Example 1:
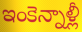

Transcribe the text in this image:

ఇంకెన్నాళ్లీ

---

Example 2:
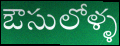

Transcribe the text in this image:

ఔసులోళ్ళ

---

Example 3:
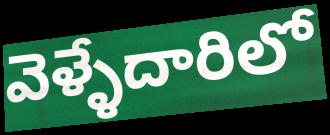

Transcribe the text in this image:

వెళ్ళేదారిలో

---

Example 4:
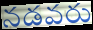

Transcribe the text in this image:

నడవరు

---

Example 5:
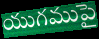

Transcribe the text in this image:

యుగముపై